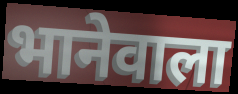
भानेवाला